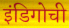
इंडिगोची